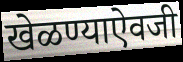
खेळण्याऐवजी